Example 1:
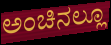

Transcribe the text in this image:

ಅಂಚಿನಲ್ಲೂ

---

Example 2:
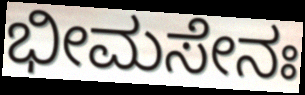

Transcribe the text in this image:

ಭೀಮಸೇನಃ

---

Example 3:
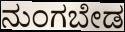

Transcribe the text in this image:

ನುಂಗಬೇಡ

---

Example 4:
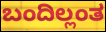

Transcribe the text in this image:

ಬಂದಿಲ್ಲಂತ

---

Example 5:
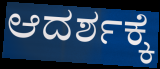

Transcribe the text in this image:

ಆದರ್ಶಕ್ಕೆ